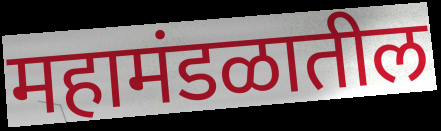
महामंडळातील